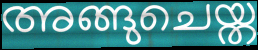
അങ്ങുചെയ്ത